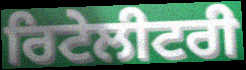
ਰਿਟੇਲੀਟਰੀ